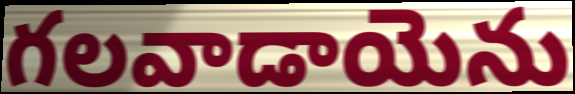
గలవాడాయెను